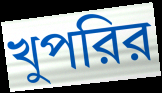
খুপরির